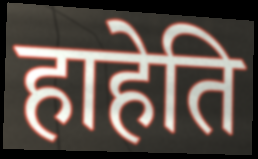
हाहेति